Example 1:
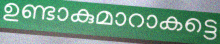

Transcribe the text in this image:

ഉണ്ടാകുമാറാകട്ടെ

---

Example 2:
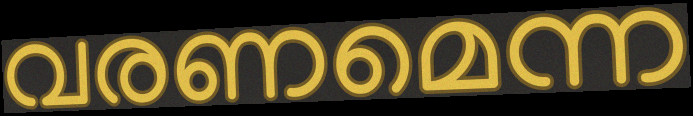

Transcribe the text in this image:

വരണമെന്ന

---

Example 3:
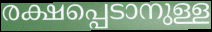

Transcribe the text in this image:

രക്ഷപ്പെടാനുള്ള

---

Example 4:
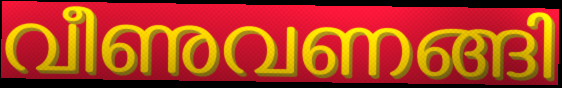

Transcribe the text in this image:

വീണുവണങ്ങി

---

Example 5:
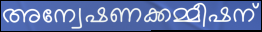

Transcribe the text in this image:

അന്വേഷണക്കമ്മീഷന്